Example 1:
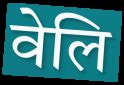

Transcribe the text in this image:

वेलि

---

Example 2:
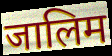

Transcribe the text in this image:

जालिम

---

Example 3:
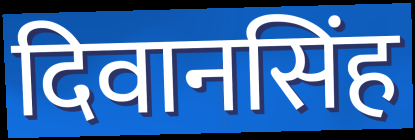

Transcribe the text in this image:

दिवानसिंह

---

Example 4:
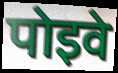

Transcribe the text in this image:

पोइवे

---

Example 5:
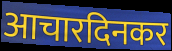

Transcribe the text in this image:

आचारदिनकर